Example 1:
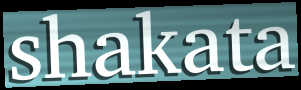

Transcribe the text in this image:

shakata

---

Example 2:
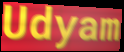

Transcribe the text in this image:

Udyam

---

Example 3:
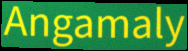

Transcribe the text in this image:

Angamaly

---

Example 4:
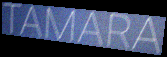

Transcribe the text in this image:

TAMARA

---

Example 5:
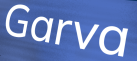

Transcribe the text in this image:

Garva